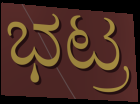
ಭಟ್ರ